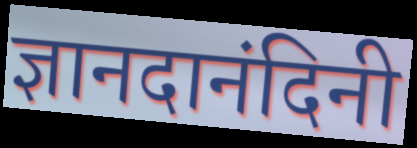
ज्ञानदानंदिनी